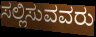
ಸಲ್ಲಿಸುವವರು